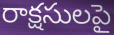
రాక్షసులపై